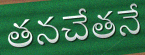
తనచేతనే